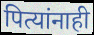
पित्यांनाही